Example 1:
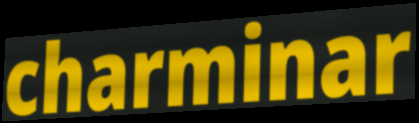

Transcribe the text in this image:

charminar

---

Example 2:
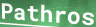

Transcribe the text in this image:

Pathros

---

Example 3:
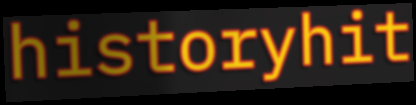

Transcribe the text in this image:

historyhit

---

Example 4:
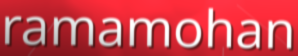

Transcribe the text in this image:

ramamohan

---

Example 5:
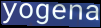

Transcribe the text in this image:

yogena